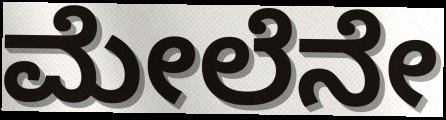
ಮೇಲೆನೇ